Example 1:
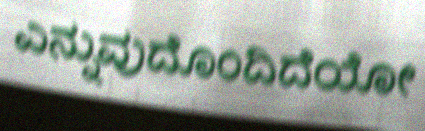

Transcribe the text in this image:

ಎನ್ನುವುದೊಂದಿದೆಯೋ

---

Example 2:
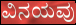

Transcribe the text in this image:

ವಿನಯವು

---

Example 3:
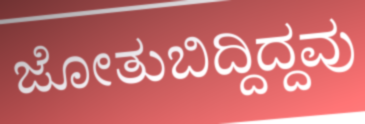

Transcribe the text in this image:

ಜೋತುಬಿದ್ದಿದ್ದವು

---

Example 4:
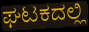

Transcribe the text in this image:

ಘಟಕದಲ್ಲಿ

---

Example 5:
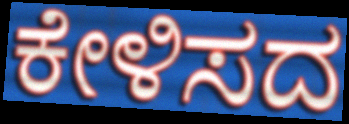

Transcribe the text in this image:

ಕೇಳಿಸದ